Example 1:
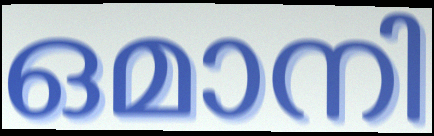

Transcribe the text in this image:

ഒമാനി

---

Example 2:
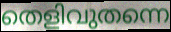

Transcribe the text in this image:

തെളിവുതന്നെ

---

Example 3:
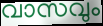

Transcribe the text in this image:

വാസവും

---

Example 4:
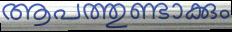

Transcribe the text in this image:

ആപത്തുണ്ടാക്കും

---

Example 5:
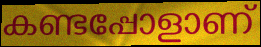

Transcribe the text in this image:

കണ്ടപ്പോളാണ്